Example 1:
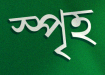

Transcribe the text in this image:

স্পৃহ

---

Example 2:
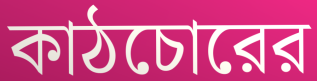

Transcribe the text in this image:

কাঠচোরের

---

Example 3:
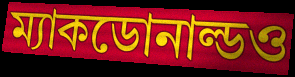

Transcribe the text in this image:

ম্যাকডোনাল্ডও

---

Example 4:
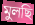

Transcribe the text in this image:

মুলছি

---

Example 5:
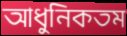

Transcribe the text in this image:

আধুনিকতম